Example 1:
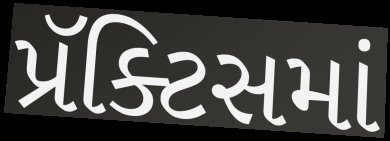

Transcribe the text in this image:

પ્રૅક્ટિસમાં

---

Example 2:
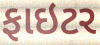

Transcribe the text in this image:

ફાઇટર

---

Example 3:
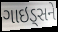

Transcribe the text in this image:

ગાઇડ્સને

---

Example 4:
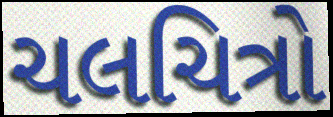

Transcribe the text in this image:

ચલચિત્રો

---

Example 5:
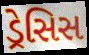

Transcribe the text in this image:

ડ્રેસિસ